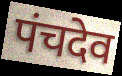
पंचदेव